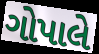
ગોપાલે